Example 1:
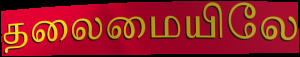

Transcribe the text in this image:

தலைமையிலே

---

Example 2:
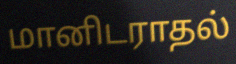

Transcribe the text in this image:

மானிடராதல்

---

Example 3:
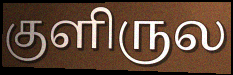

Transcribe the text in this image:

குளிருல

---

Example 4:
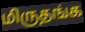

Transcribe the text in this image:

மிருதங்க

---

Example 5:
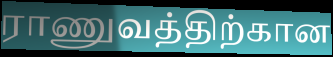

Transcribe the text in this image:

ராணுவத்திற்கான